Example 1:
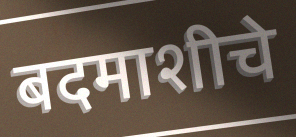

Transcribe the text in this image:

बदमाशीचे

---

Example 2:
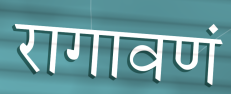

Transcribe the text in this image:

रागावणं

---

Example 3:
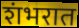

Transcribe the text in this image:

शंभरात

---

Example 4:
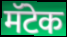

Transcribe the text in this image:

मॅटेक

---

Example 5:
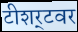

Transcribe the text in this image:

टीशर्टवर